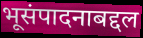
भूसंपादनाबद्दल